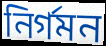
নির্গমন